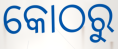
କୋଠରୁ